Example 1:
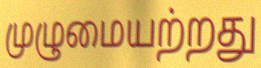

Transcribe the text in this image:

முழுமையற்றது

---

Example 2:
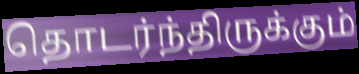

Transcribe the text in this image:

தொடர்ந்திருக்கும்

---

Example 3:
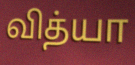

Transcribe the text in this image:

வித்யா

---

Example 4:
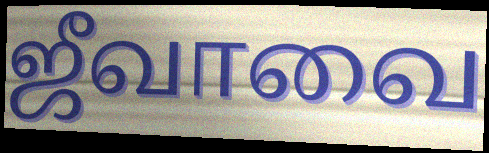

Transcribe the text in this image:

ஜீவாவை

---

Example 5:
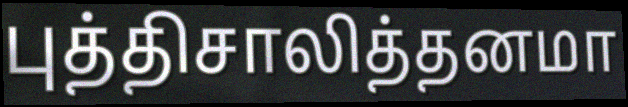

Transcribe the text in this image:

புத்திசாலித்தனமா